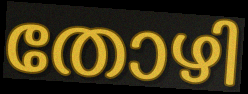
തോഴി